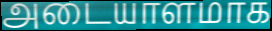
அடையாளமாக